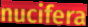
nucifera